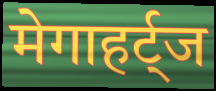
मेगाहर्ट्ज